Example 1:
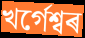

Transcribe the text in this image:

খৰ্গেশ্বৰ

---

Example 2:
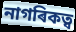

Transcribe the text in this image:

নাগৰিকত্ব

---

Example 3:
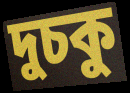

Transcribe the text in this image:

দুচকু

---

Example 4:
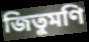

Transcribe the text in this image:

জিতুমণি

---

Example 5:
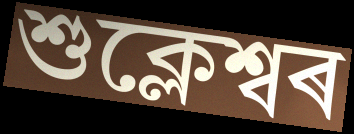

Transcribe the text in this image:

শুক্লেশ্বৰ